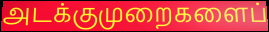
அடக்குமுறைகளைப்